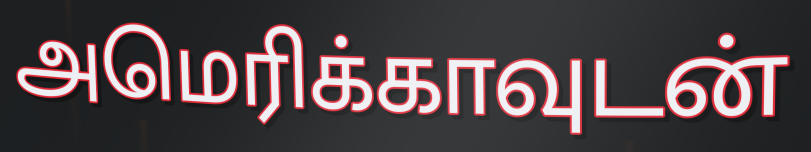
அமெரிக்காவுடன்